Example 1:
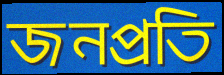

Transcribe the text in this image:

জনপ্রতি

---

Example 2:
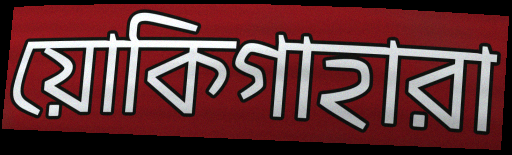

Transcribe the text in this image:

য়োকিগাহারা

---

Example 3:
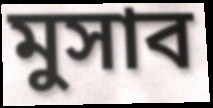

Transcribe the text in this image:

মুসাব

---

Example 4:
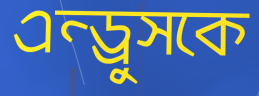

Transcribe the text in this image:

এন্ড্রুসকে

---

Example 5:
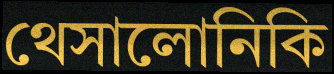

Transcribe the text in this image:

থেসালোনিকি